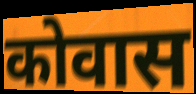
कोवास